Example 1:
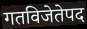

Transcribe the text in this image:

गतविजेतेपद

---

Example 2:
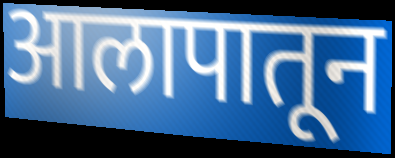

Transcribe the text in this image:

आलापातून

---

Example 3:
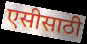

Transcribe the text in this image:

एसीसाठी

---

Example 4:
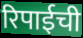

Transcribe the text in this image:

रिपाईची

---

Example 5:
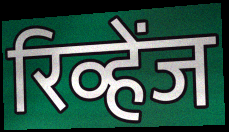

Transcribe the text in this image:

रिव्हेंज